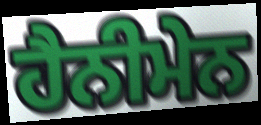
ਹੈਨੀਮੇਨ